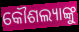
କୌଶଲ୍ୟାଙ୍କୁ